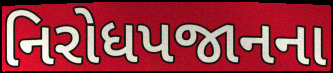
નિરોધપજાનના